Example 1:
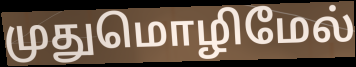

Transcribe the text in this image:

முதுமொழிமேல்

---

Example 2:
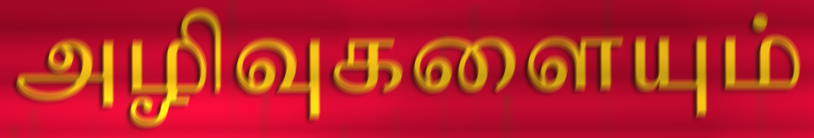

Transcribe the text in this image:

அழிவுகளையும்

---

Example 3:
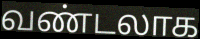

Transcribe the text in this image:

வண்டலாக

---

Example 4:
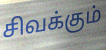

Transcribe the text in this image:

சிவக்கும்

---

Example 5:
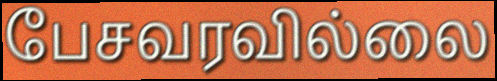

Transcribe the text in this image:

பேசவரவில்லை